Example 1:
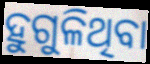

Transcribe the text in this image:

ହୁଗୁଳିଥିବା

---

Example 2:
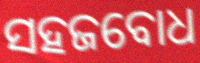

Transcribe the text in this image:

ସହଜବୋଧ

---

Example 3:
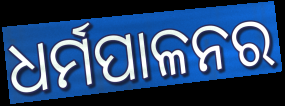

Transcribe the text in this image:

ଧର୍ମପାଳନର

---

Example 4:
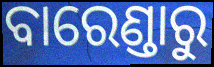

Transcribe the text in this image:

ବାରେଣ୍ଡାରୁ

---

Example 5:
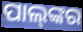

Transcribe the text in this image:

ପାଲ୍‍ଙ୍କର